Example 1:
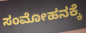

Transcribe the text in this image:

ಸಂಮೋಹನಕ್ಕೆ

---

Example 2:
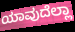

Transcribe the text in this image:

ಯಾವುದೆಲ್ಲಾ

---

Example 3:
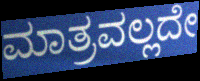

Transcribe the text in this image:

ಮಾತ್ರವಲ್ಲದೇ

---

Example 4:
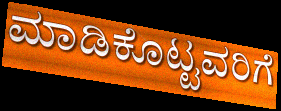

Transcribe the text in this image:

ಮಾಡಿಕೊಟ್ಟವರಿಗೆ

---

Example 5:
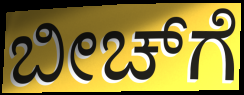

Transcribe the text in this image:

ಬೀಚ್‌ಗೆ